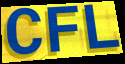
CFL